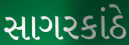
સાગરકાંઠે